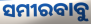
ସମୀରବାବୁ